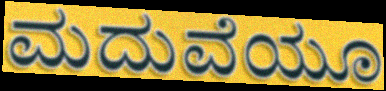
ಮದುವೆಯೂ